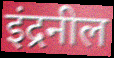
इंद्रनील